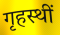
गृहस्थीं